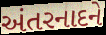
અંતરનાદને